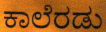
ಕಾಲೆರಡು